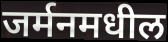
जर्मनमधील